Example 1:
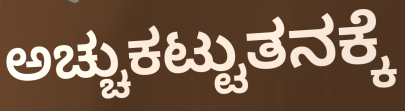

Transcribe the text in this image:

ಅಚ್ಚುಕಟ್ಟುತನಕ್ಕೆ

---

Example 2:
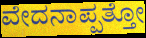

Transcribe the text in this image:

ವೇದನಾಪ್ಪತ್ತೋ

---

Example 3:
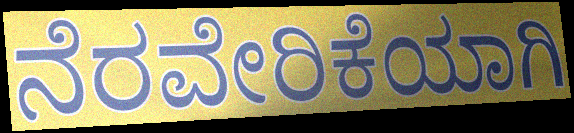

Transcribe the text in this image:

ನೆರವೇರಿಕೆಯಾಗಿ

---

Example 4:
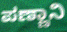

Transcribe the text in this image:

ಪಣ್ಣಾನಿ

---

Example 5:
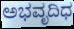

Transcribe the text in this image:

ಅಭವೃದಿಧ